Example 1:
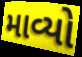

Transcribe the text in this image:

માવ્યો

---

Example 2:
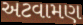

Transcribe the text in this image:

અટવામણ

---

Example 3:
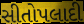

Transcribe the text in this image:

સીતોપલાદી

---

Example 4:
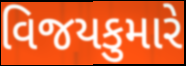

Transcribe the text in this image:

વિજયકુમારે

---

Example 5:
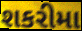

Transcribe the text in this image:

શકરીમા